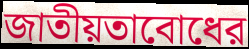
জাতীয়তাবোধের